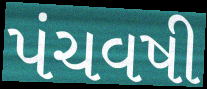
પંચવષી